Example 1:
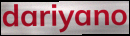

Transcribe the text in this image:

dariyano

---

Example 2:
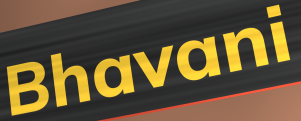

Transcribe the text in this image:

Bhavani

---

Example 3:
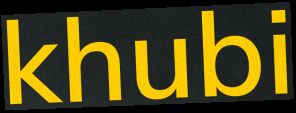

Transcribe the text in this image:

khubi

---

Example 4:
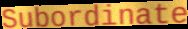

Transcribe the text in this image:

Subordinate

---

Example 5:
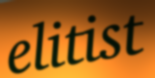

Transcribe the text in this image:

elitist